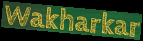
Wakharkar